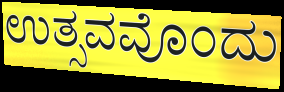
ಉತ್ಸವವೊಂದು